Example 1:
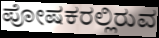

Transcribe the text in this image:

ಪೋಷಕರಲ್ಲಿರುವ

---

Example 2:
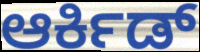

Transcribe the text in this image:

ಆರ್ಕಿಡ್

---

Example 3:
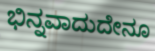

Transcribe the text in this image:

ಭಿನ್ನವಾದುದೇನೂ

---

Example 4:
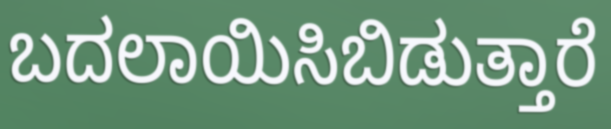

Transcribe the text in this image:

ಬದಲಾಯಿಸಿಬಿಡುತ್ತಾರೆ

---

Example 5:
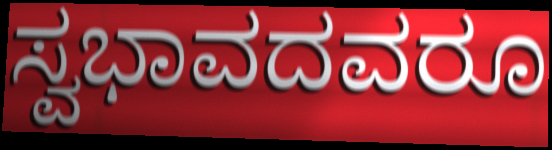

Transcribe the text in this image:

ಸ್ವಭಾವದವರೂ